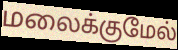
மலைக்குமேல்